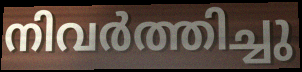
നിവർത്തിച്ചു